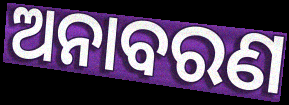
ଅନାବରଣ